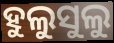
ହୁଲୁସୁଲୁ